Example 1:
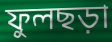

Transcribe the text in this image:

ফুলছড়া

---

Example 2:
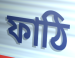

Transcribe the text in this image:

ফাঠি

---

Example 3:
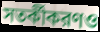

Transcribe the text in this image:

সতর্কীকরণও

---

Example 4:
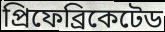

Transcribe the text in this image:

প্রিফেব্রিকেটেড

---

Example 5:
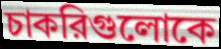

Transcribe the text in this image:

চাকরিগুলোকে